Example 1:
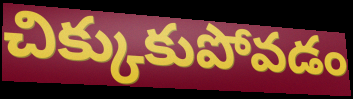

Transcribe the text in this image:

చిక్కుకుపోవడం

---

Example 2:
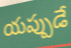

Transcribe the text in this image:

యప్పుడే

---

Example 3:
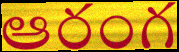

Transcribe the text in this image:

ఆరంగ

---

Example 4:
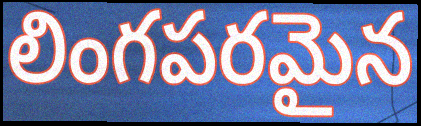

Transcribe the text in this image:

లింగపరమైన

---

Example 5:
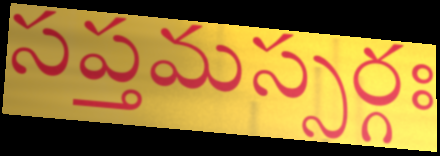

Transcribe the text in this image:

సప్తమస్సర్గః